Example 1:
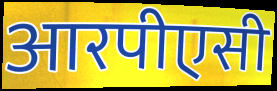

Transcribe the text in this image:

आरपीएसी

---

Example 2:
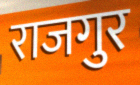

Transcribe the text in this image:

राजगुर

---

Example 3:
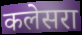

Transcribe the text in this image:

कलेसरा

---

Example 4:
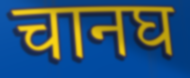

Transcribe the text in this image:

चानघ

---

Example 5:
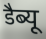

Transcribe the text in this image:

डैब्यू